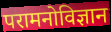
परामनोविज्ञान